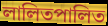
লালিতপালিত